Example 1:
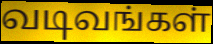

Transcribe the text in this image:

வடிவங்கள்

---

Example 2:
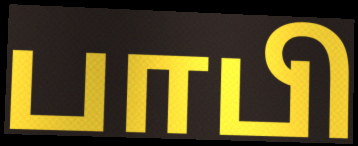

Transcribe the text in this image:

பாபி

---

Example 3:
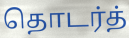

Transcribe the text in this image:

தொடர்த்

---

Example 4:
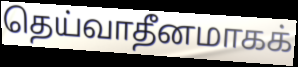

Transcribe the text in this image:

தெய்வாதீனமாகக்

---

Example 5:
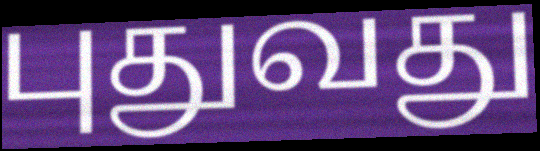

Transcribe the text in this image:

புதுவது